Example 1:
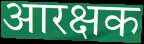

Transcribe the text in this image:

आरक्षक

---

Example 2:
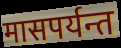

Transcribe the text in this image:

मासपर्यन्त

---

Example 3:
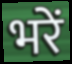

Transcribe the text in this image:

भरें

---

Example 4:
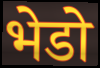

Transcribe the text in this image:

भेडो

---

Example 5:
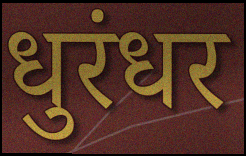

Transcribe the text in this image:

धुरंधर